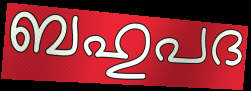
ബഹുപദ